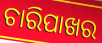
ଚାରିପାଖର